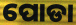
ପୋଡା